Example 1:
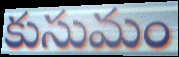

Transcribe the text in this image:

కుసుమం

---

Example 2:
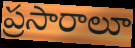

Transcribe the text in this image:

ప్రసారాలూ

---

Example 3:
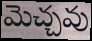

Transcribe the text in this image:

మెచ్చవు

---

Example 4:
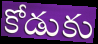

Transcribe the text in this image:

కోడుకు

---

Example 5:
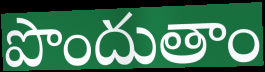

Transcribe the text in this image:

పొందుతాం